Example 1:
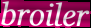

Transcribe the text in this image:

broiler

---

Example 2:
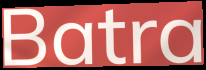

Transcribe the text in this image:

Batra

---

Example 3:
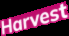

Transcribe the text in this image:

Harvest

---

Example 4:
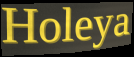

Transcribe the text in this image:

Holeya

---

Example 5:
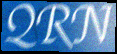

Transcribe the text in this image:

QRN